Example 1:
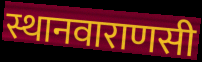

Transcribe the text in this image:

स्थानवाराणसी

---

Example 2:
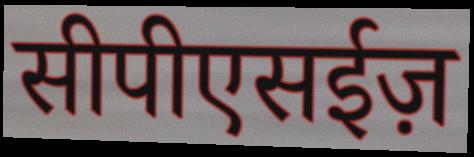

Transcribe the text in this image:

सीपीएसईज़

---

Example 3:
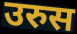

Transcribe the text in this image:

उरुस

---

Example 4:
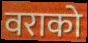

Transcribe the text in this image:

वराको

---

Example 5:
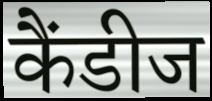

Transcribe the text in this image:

कैंडीज